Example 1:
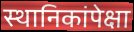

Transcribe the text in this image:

स्थानिकांपेक्षा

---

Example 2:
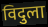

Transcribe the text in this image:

विदुला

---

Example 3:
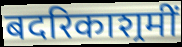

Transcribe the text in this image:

बदरिकाश्रमीं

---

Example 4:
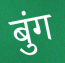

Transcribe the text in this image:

बुंग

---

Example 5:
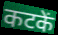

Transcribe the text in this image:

कटकें